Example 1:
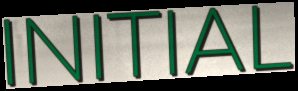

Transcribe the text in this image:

INITIAL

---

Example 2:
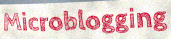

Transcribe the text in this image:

Microblogging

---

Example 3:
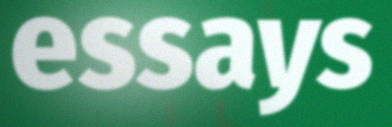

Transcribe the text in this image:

essays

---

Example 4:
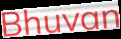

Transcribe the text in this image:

Bhuvan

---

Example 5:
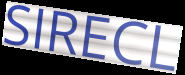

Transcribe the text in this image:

SIRECL